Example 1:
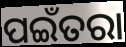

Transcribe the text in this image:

ପଇଁତରା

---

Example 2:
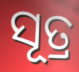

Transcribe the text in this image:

ସୂତ୍ର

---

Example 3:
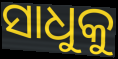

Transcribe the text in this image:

ସାଧୁକୁ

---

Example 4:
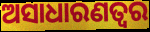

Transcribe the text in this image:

ଅସାଧାରଣତ୍ୱର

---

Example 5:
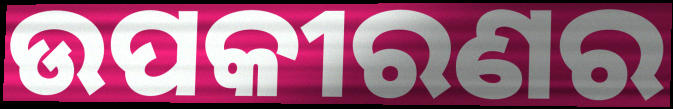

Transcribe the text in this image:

ଉପକୀରଣର